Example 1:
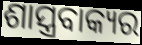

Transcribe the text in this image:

ଶାସ୍ତ୍ରବାକ୍ୟର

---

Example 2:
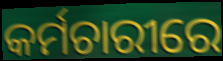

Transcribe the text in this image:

କର୍ମଚାରୀରେ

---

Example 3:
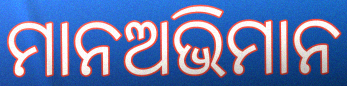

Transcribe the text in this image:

ମାନଅଭିମାନ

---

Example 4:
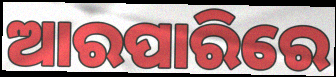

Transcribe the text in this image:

ଆରପାରିରେ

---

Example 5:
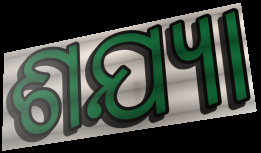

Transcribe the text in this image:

ଶଯ୍ୟା